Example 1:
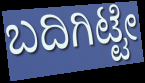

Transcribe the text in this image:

ಬದಿಗಿಟ್ಟೇ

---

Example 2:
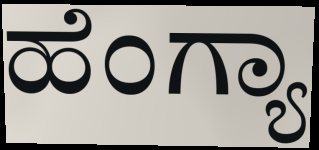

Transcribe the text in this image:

ಹೆಂಗ್ಯಾ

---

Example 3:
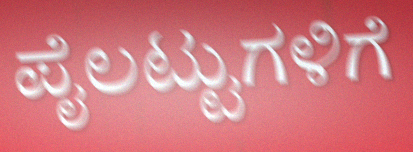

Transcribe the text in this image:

ಪೈಲಟ್ಟುಗಳಿಗೆ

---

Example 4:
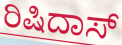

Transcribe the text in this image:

ರಿಷಿದಾಸ್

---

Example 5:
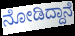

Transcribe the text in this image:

ನೋಡಿದ್ದಾನೆ